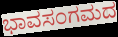
ಭಾವಸಂಗಮದ